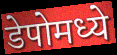
डेपोमध्ये